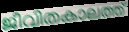
ജീവിതകാലത്ത്